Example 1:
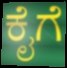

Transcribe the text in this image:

ಕೈಗೆ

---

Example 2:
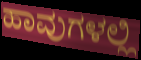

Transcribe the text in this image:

ಹಾವುಗಳಲ್ಲಿ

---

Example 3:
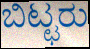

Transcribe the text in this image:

ಬಿಟ್ಟರು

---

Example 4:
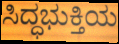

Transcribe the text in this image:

ಸಿದ್ಧಭುಕ್ತಿಯ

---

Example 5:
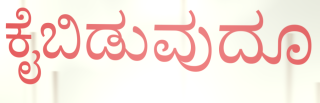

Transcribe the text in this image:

ಕೈಬಿಡುವುದೂ